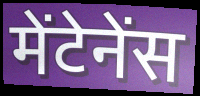
मेंटेनेंस